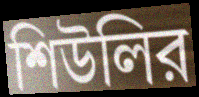
শিউলির